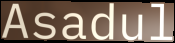
Asadul